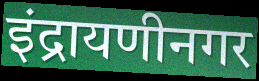
इंद्रायणीनगर